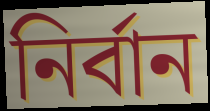
নির্বান